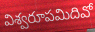
విశ్వరూపమిదివో